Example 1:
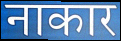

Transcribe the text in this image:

नाकार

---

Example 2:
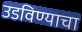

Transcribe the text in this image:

उडविण्याचा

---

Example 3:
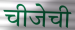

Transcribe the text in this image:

चीजेची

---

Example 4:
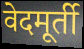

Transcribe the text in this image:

वेदमूर्ती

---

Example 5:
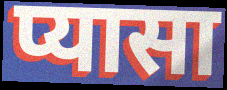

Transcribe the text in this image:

प्यासा